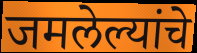
जमलेल्यांचे